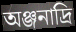
অঞ্জনাদ্রি